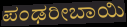
ಪಂಢರೀಬಾಯಿ